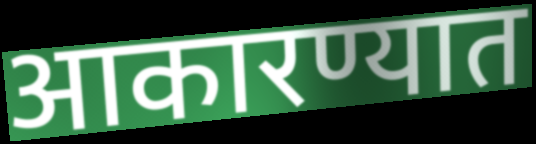
आकारण्यात